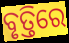
ବୃତ୍ତିରେ